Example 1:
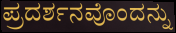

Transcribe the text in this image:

ಪ್ರದರ್ಶನವೊಂದನ್ನು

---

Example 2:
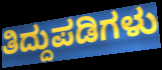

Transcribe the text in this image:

ತಿದ್ದುಪಡಿಗಳು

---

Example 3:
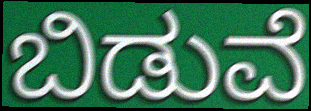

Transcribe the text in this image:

ಬಿಡುವೆ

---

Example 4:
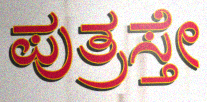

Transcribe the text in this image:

ಪುತ್ರಸ್ತೇ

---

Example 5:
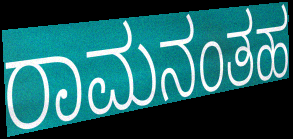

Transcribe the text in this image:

ರಾಮನಂತಹ